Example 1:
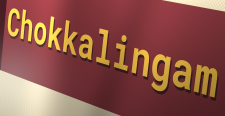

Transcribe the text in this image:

Chokkalingam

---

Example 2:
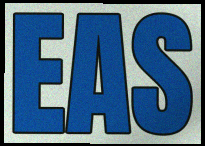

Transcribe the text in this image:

EAS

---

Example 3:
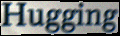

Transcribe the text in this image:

Hugging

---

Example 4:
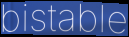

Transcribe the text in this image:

bistable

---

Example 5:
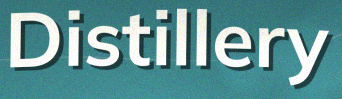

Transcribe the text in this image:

Distillery